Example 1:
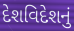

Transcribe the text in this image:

દેશવિદેશનું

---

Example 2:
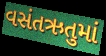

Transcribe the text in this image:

વસંતઋતુમાં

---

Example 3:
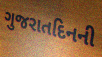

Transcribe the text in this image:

ગુજરાતદિનની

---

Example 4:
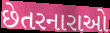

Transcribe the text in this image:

છેતરનારાઓ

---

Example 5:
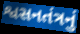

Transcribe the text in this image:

શ્વસનતંત્રનું